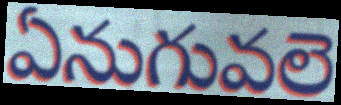
ఏనుగువలె